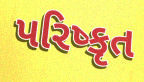
પરિષ્કૃત